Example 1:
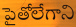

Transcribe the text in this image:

పైతోలేగాని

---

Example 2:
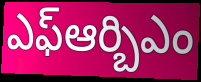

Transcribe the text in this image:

ఎఫ్ఆర్బిఎం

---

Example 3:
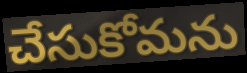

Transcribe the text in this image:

చేసుకోమను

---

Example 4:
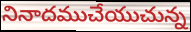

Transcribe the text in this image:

నినాదముచేయుచున్న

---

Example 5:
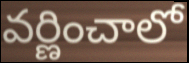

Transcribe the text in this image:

వర్ణించాలో